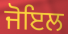
ਜੋਇਲ